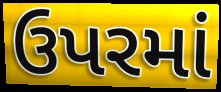
ઉપરમાં